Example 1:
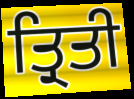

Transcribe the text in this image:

ਤ੍ਰਿਤੀ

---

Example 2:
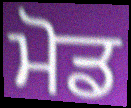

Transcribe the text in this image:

ਮੋਡ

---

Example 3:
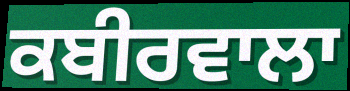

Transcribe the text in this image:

ਕਬੀਰਵਾਲਾ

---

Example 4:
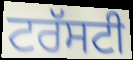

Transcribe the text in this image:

ਟਰੱਸਟੀ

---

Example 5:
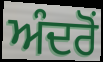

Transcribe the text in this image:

ਅੰਦਰੋਂ